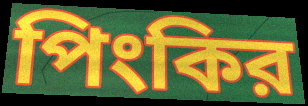
পিংকির